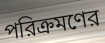
পরিক্রমণের